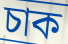
চাক